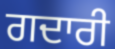
ਗਦਾਰੀ